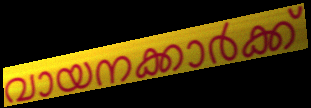
വായനക്കാർക്ക്